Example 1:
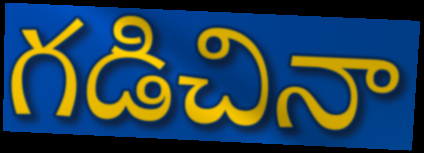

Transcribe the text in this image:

గడిచినా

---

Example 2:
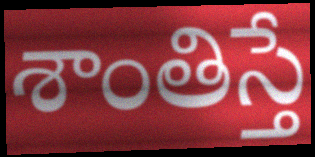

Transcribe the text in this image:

శాంతిస్తే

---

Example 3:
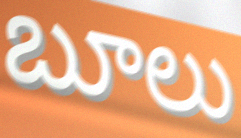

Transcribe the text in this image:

బూలు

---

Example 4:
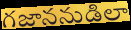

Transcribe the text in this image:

గజాననుడిలా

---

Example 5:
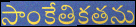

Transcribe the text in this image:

సాంకేతికతను